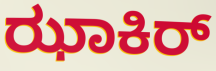
ಝಾಕಿರ್